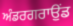
ਅੰਡਰਗਰਾਉਂਡ